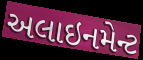
અલાઇનમેન્ટ